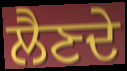
ਲੈਣਦੇ